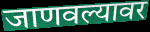
जाणवल्यावर